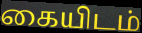
கையிடம்